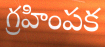
గ్రహింపక